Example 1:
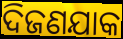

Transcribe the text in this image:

ଦିଜଣଯାକ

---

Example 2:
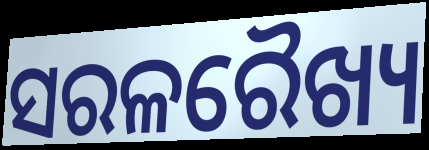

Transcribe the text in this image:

ସରଳରୈଖ୍ୟ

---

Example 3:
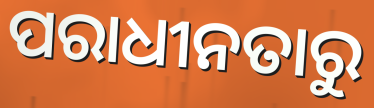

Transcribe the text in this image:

ପରାଧୀନତାରୁ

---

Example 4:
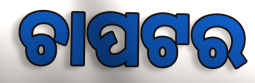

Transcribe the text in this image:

ଚାପଟର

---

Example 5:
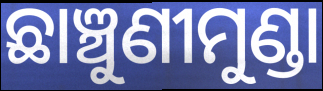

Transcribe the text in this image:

ଛାଞ୍ଚୁଣୀମୁଣ୍ଡା